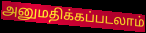
அனுமதிக்கப்படலாம்